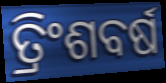
ତ୍ରିଂଶବର୍ଷ